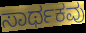
ಸಾರ್ಥಕವು